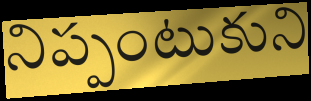
నిప్పంటుకుని